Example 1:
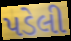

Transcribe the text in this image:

પડેલી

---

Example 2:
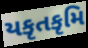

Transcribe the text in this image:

યકૃતકૃમિ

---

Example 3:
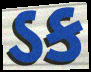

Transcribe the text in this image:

ડક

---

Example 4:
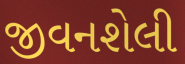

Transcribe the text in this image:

જીવનશેલી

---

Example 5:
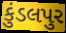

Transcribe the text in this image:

કુંડલપુર